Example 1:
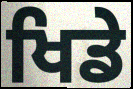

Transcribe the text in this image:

ਖਿਡੇ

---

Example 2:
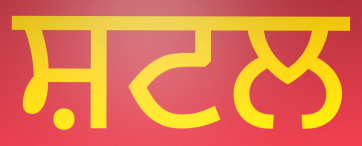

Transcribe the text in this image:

ਸ਼ਟਲ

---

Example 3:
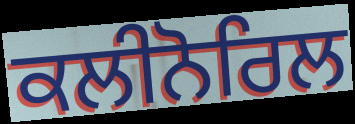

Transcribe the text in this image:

ਕਲੀਨੋਰਿਲ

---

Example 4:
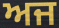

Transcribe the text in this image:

ਅਜ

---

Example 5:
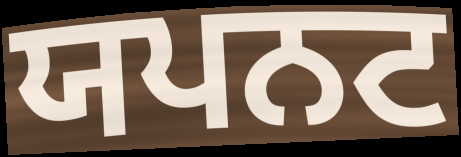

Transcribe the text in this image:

ਯਪਨਟ